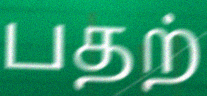
பதற்